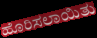
ಹೊರಿಸಲಾಯಿತು